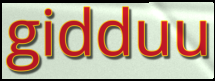
gidduu